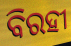
ବିରହୀ